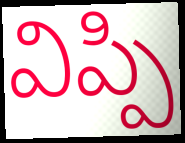
విప్పి